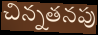
చిన్నతనపు